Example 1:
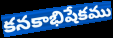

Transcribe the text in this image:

కనకాభిషేకము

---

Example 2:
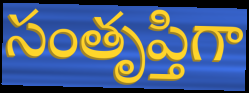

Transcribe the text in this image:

సంతృప్తిగా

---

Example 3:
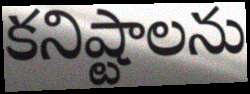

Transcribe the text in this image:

కనిష్టాలను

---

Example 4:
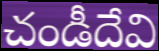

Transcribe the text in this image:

చండీదేవి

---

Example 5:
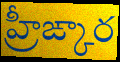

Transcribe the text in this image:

హ్రీఙ్కార